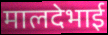
मालदेभाई